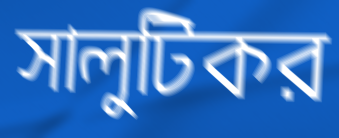
সালুটিকর